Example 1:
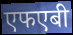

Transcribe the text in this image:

एफएबी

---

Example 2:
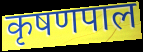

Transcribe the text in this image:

कृषणपाल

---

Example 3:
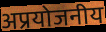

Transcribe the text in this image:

अप्रयोजनीय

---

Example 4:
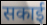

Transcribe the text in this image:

सकाई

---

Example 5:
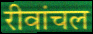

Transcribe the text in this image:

रीवांचल